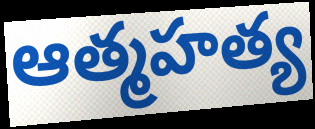
ఆత్మహత్య